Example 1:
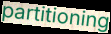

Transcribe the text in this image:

partitioning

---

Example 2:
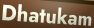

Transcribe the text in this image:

Dhatukam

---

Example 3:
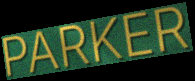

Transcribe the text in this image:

PARKER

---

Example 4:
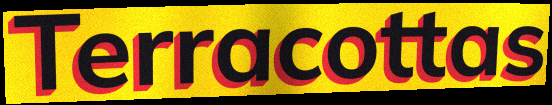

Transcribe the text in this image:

Terracottas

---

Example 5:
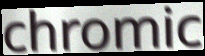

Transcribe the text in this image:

chromic